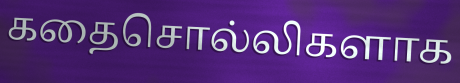
கதைசொல்லிகளாக